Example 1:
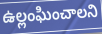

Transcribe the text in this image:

ఉల్లంఘించాలని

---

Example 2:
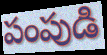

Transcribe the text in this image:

పంపుడి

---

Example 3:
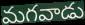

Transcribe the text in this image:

మగవాడు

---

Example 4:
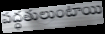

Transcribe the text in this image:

పద్ధతులుంటాయి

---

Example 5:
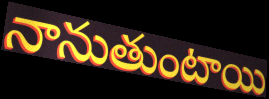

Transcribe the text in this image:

నానుతుంటాయి